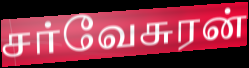
சர்வேசுரன்